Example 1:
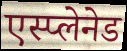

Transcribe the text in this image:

एस्प्लेनेड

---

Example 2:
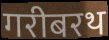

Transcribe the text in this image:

गरीबरथ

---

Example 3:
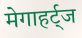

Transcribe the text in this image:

मेगाहर्ट्ज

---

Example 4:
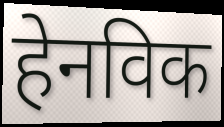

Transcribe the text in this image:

हेनविक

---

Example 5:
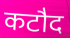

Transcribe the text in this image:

कटौद